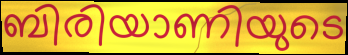
ബിരിയാണിയുടെ